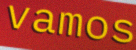
vamos